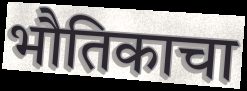
भौतिकाचा